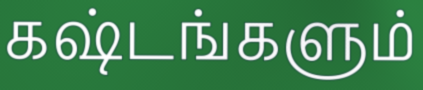
கஷ்டங்களும்